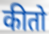
कीतो